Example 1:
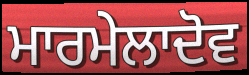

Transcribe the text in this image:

ਮਾਰਮੇਲਾਦੋਵ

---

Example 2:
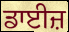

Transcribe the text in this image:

ਡਾਈਜ਼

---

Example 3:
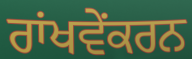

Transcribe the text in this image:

ਰਾਂਖਵੇਂਕਰਨ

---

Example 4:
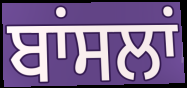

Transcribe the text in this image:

ਬਾਂਸਲਾਂ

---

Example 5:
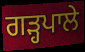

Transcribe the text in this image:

ਗੜ੍ਹਪਾਲੇ